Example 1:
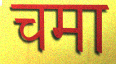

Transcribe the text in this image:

चमा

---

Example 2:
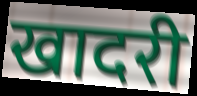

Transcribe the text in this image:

खादरी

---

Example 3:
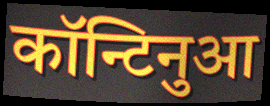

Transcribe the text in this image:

कॉन्टिनुआ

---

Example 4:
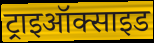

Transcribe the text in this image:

ट्राइऑक्साइड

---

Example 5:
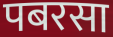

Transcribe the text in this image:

पबरसा